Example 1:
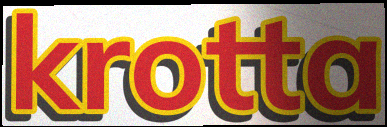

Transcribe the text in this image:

krotta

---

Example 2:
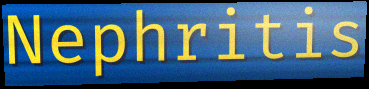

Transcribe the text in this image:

Nephritis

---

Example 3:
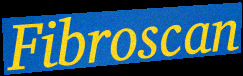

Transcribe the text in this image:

Fibroscan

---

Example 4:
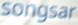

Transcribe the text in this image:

songsar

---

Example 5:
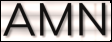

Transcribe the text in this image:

AMN